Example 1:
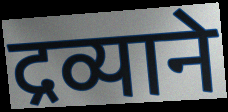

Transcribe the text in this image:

द्रव्याने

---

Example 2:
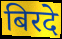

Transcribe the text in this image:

बिरदे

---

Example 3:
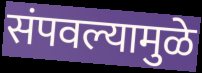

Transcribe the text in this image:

संपवल्यामुळे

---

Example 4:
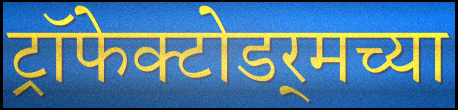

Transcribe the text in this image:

ट्रॉफेक्टोडर्मच्या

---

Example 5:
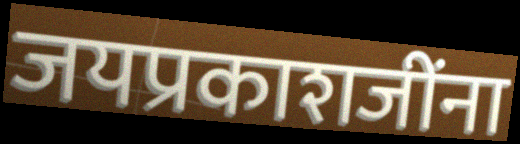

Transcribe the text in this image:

जयप्रकाशजींना